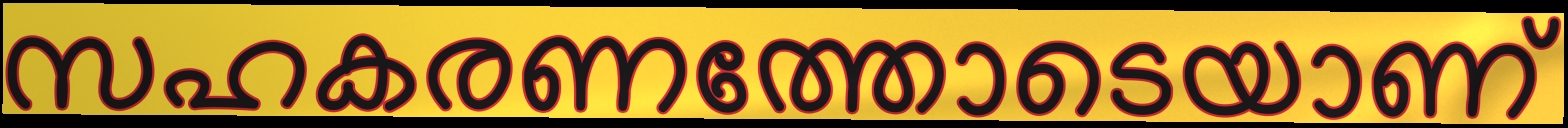
സഹകരണത്തോടെയാണ്